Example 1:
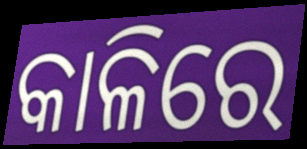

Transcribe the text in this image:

କାଳିରେ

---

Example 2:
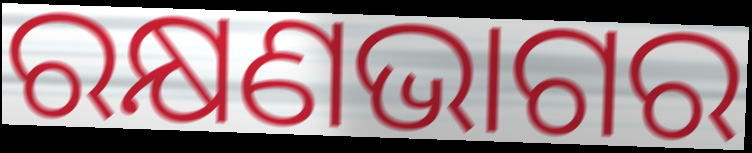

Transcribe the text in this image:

ରକ୍ଷଣଭାଗର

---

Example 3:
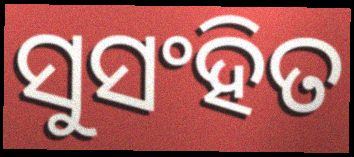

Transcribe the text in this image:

ସୁସଂହିତ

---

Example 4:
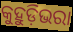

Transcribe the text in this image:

କୁହୁଡ଼ିଭରା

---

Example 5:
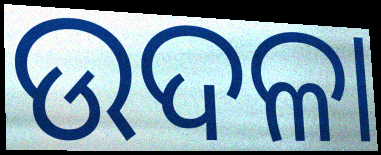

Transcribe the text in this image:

ଉଦଳା